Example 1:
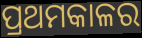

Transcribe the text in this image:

ପ୍ରଥମକାଳର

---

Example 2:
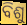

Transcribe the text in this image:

ବିଶୁ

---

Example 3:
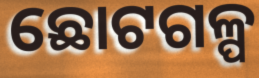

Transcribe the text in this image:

ଛୋଟଗଳ୍ପ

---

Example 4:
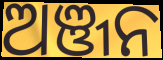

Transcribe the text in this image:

ଅଞ୍ଜନ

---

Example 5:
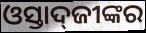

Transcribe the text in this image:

ଓସ୍ତାଦ୍‌ଜୀଙ୍କର